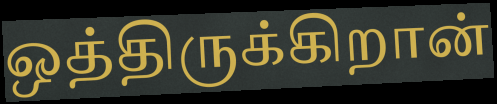
ஒத்திருக்கிறான்